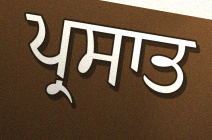
ਪ੍ਰਸਾਤ